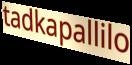
tadkapallilo